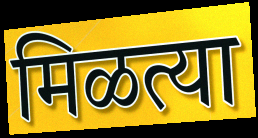
मिळत्या